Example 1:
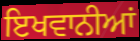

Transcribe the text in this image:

ਇਖਵਾਨੀਆਂ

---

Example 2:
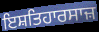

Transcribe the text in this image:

ਇਸ਼ਤਿਹਾਰਸਾਜ਼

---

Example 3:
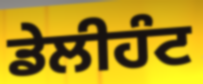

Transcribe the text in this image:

ਡੇਲੀਹੰਟ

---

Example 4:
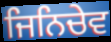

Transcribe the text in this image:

ਜਿਨਿਚੇਵ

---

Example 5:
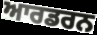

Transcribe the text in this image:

ਆਰਡਰਨ